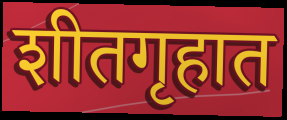
शीतगृहात